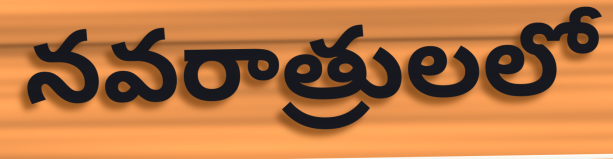
నవరాత్రులలో